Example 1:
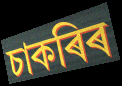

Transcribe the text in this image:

চাকৰিৰ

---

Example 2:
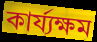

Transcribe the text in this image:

কাৰ্য্যক্ষম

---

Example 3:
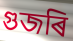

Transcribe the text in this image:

গুজৰি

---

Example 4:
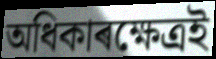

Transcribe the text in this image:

অধিকাৰক্ষেত্ৰই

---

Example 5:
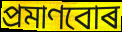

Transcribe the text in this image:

প্ৰমাণবোৰ